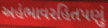
અહંભાવરહિતપણું